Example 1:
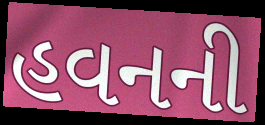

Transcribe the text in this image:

હવનની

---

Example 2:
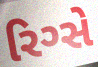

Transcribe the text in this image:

રિગ્સે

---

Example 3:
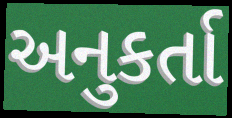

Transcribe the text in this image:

અનુકર્તા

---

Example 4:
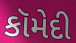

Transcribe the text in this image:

કૉમેદી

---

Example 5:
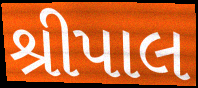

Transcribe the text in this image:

શ્રીપાલ